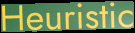
Heuristic